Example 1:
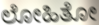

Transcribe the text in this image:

ಲೋಹಿತೋ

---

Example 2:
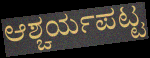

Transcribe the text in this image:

ಆಶ್ಚರ್ಯಪಟ್ಟ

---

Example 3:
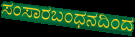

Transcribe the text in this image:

ಸಂಸಾರಬಂಧನದಿಂದ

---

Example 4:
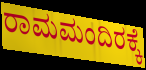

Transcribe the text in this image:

ರಾಮಮಂದಿರಕ್ಕೆ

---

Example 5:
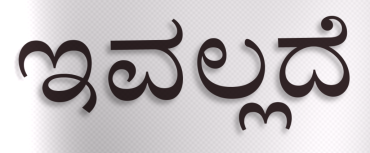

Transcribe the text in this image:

ಇವಲ್ಲದೆ